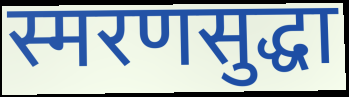
स्मरणसुद्धा